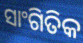
ସାଂଗିତିକ